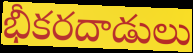
భీకరదాడులు